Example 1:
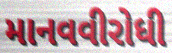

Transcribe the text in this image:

માનવવીરોધી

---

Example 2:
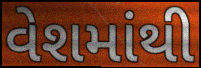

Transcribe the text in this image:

વેશમાંથી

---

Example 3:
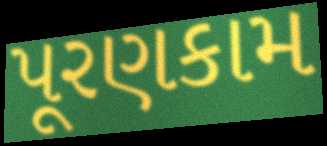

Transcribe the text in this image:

પૂરણકામ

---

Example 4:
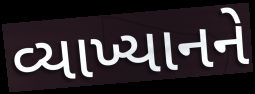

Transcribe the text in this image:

વ્યાખ્યાનને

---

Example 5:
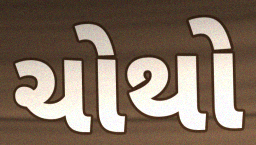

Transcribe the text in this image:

ચોથો